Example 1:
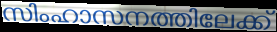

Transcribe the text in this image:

സിംഹാസനത്തിലേക്ക്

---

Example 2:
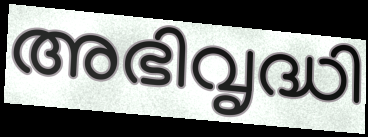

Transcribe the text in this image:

അഭിവൃദ്ധി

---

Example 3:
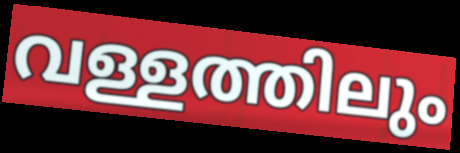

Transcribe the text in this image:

വള്ളത്തിലും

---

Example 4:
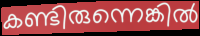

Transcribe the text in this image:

കണ്ടിരുന്നെങ്കിൽ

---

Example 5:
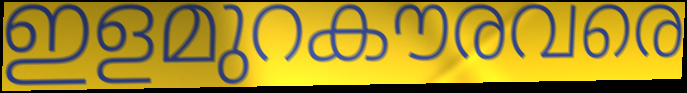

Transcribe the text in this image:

ഇളമുറകൗരവരെ